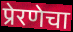
प्रेरणेचा